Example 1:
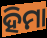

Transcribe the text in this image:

ହିମା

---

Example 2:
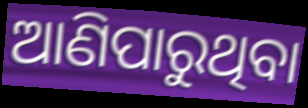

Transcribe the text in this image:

ଆଣିପାରୁଥିବା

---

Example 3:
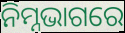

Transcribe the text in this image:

ନିମ୍ନଭାଗରେ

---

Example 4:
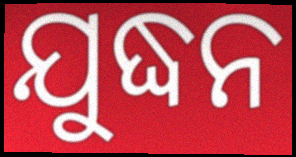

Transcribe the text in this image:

ଯୁଦ୍ଧନ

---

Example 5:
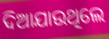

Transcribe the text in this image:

ଦିଆଯାଉଥିଲେ